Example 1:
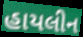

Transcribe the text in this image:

હાયલીન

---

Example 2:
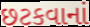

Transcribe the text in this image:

છટકવાનાં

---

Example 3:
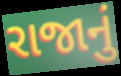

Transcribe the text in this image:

રાજાનું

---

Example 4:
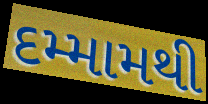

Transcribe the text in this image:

દમ્મામથી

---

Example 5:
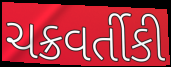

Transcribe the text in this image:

ચક્રવર્તીકી